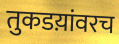
तुकडय़ांवरच